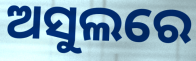
ଅସୁଲରେ